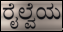
ರೈಲ್ವೆಯ